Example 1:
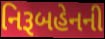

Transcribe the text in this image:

નિરૂબહેનની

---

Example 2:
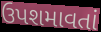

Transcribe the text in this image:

ઉપશમાવતાં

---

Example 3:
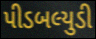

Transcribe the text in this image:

પીડબલ્યુડી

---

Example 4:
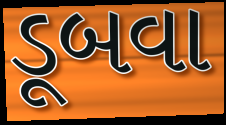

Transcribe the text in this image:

ડૂબવા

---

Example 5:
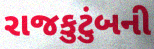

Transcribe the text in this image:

રાજકુટુંબની